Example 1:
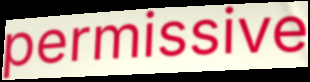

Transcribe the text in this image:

permissive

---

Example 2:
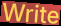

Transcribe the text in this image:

Write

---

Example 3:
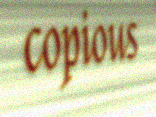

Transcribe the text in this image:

copious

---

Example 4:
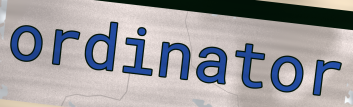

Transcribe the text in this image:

ordinator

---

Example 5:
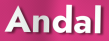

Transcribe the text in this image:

Andal